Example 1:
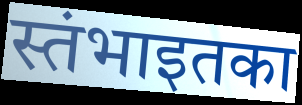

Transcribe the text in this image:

स्तंभाइतका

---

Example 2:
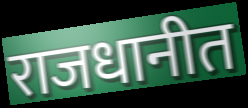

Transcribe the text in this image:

राजधानीत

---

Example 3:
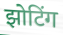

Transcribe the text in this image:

झोटिंग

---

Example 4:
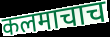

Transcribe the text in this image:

कलमाचाच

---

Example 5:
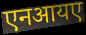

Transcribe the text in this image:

एनआयए